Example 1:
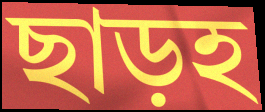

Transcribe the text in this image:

ছাড়হ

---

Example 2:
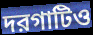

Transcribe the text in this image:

দরগাটিও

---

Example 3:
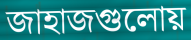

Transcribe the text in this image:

জাহাজগুলোয়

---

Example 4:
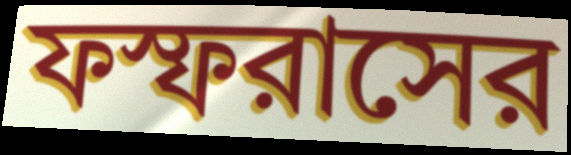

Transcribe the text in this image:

ফস্ফরাসের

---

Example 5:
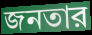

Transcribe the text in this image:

জনতার